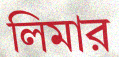
লিমার